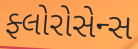
ફ્લોરોસેન્સ